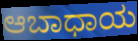
ಆಬಾಧಾಯ